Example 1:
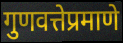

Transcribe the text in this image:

गुणवत्तेप्रमाणे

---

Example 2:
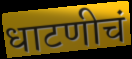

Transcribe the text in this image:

धाटणीचं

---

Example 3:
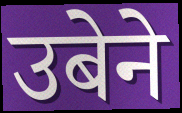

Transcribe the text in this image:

उबेने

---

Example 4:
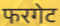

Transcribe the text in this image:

फरगेट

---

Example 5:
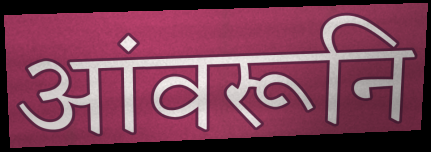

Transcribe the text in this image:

आंवरूनि